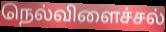
நெல்விளைச்சல்